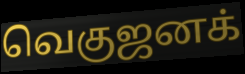
வெகுஜனக்